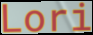
Lori